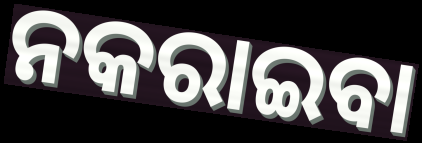
ନକରାଇବା